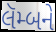
લૅમ્બને